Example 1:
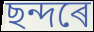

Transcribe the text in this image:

ছন্দৰে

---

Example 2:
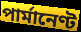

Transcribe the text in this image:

পাৰ্মানেণ্ট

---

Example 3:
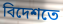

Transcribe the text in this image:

বিদেশতে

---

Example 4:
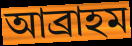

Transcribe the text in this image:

আব্ৰাহম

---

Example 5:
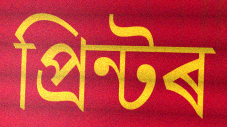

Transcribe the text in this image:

প্ৰিন্টৰ